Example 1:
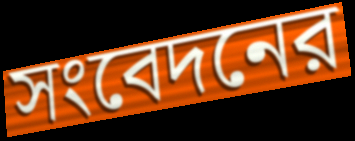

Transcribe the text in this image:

সংবেদনের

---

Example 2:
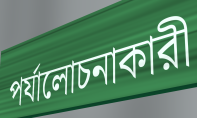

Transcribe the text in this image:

পর্যালোচনাকারী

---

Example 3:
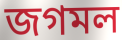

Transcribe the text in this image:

জগমল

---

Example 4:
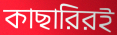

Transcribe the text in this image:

কাছারিরই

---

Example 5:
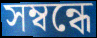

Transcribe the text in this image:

সম্বন্ধে